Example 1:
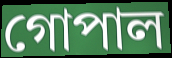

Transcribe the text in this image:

গোপাল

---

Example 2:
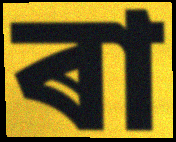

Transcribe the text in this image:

ৰা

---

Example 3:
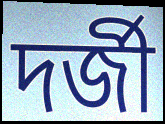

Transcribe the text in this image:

দৰ্জী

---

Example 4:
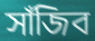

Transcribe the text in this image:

সাঁজিব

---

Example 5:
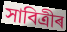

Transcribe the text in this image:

সাবিত্ৰীৰ